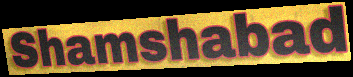
Shamshabad